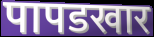
पापडखार